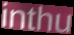
inthu